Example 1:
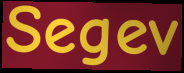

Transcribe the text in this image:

Segev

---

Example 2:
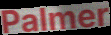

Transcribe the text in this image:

Palmer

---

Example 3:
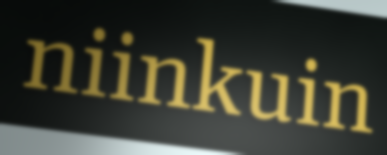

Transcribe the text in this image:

niinkuin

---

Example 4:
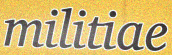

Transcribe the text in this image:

militiae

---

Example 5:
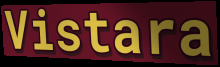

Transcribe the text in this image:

Vistara